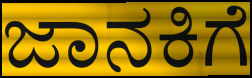
ಜಾನಕಿಗೆ